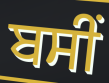
ਬਸੀਂ